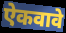
ऐकवावे